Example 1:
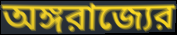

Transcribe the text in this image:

অঙ্গরাজ্যের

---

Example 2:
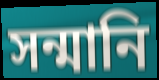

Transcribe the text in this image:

সন্মানি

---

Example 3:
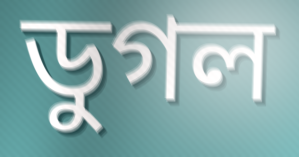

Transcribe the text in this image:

ডুগল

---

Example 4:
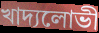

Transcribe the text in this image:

খাদ্যলোভী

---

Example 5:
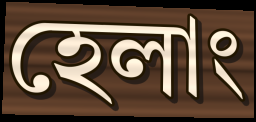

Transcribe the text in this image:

হেলাং